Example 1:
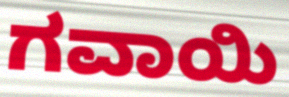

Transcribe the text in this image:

ಗವಾಯಿ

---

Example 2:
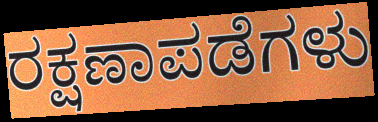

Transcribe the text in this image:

ರಕ್ಷಣಾಪಡೆಗಳು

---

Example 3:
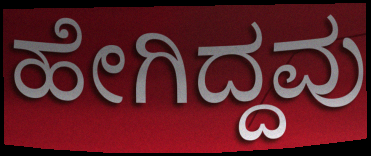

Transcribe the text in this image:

ಹೇಗಿದ್ದವು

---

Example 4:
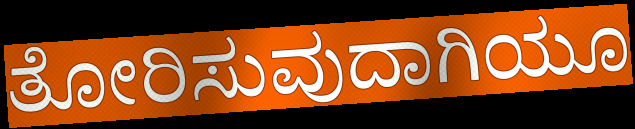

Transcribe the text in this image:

ತೋರಿಸುವುದಾಗಿಯೂ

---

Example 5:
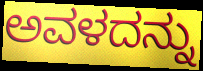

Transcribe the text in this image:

ಅವಳದನ್ನು